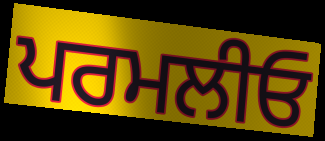
ਪਰਮਲੀਓ